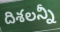
దిశలన్నీ